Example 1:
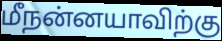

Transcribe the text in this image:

மீநன்னயாவிற்கு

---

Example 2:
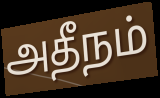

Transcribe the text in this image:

அதீநம்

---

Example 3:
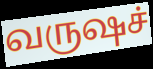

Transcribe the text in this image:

வருஷச்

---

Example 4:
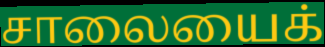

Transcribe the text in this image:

சாலையைக்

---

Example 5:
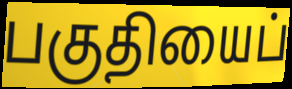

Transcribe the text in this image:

பகுதியைப்